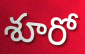
శూరో